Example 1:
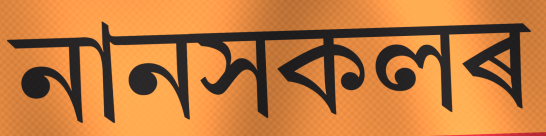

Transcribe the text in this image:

নানসকলৰ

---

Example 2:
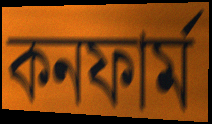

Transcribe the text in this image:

কনফাৰ্ম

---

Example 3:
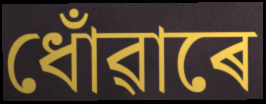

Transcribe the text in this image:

ধোঁৱাৰে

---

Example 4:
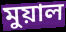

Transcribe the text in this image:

মুয়াল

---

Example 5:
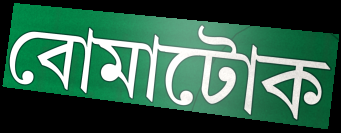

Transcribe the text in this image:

বোমাটোক